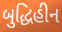
બુદ્ધિહીન